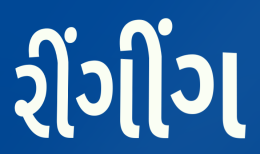
રીંગીંગ